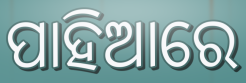
ପାହିଆରେ